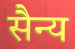
सैन्य